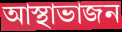
আস্থাভাজন